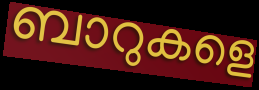
ബാറുകളെ